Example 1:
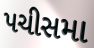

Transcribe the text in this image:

પચીસમા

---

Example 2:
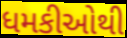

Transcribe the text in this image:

ધમકીઓથી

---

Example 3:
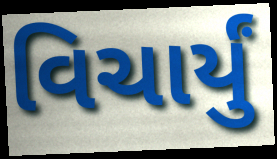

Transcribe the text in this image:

વિચાર્યું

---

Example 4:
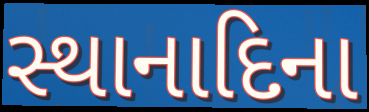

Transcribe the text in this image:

સ્થાનાદિના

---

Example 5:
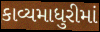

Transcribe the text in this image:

કાવ્યમાધુરીમાં